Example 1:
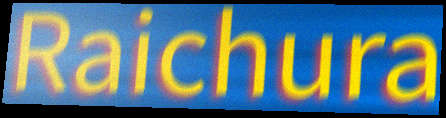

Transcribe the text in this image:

Raichura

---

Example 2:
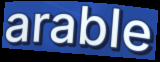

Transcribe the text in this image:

arable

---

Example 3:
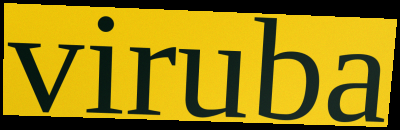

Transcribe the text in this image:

viruba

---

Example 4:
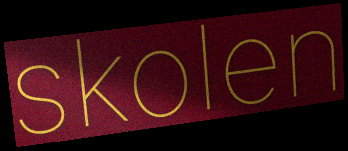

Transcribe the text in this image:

skolen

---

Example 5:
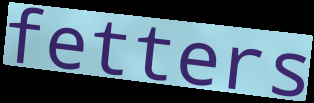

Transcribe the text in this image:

fetters